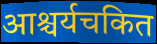
आश्चर्यचकित